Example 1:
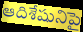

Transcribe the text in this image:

ఆదిశేషునిపై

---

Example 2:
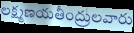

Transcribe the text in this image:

లక్ష్మణయతీంద్రులవారు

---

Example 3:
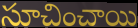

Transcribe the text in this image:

సూచించాయి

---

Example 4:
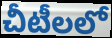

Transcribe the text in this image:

చీటీలలో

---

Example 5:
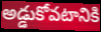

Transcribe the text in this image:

అడ్డుకోవటానికి